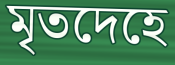
মৃতদেহে